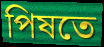
পিষতে